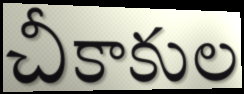
చీకాకుల